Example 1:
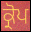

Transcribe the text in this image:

ਕ੍ਰੋਪ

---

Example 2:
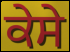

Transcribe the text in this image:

ਕੇਸੇ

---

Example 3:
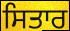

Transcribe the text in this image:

ਸਿਤਾਰ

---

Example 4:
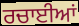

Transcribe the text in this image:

ਰਚਾਈਆਂ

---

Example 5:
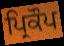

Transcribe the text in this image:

ਪ੍ਰਿਕੌਪ